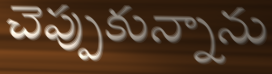
చెప్పుకున్నాను